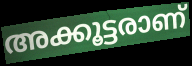
അക്കൂട്ടരാണ്